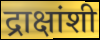
द्राक्षांशी